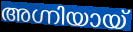
അഗ്നിയായ്